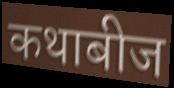
कथाबीज